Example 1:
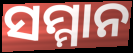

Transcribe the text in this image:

ସମ୍ମାନ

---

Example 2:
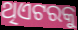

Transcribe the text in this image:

ଥିଏଟରକୁ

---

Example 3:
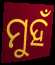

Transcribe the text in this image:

ମୁହଁ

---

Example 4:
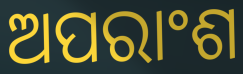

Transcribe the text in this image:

ଅପରାଂଶ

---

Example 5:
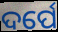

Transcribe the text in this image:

ଦର୍ପେ